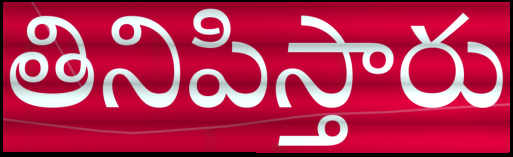
తినిపిస్తారు